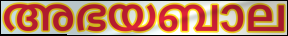
അഭയബാല